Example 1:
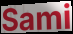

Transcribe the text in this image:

Sami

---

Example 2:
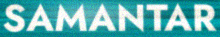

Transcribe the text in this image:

SAMANTAR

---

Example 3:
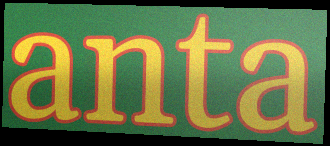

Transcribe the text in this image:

anta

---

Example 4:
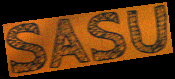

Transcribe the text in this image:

SASU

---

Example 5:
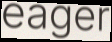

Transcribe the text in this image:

eager